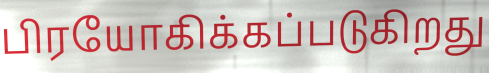
பிரயோகிக்கப்படுகிறது